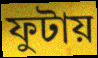
ফুটায়